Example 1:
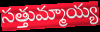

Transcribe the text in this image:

సత్తుమ్మాయ్య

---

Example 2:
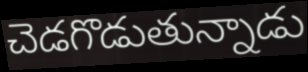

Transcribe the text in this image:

చెడగొడుతున్నాడు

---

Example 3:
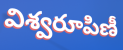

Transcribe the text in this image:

విశ్వరూపిణీ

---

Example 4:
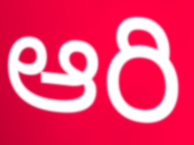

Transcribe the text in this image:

ఆరి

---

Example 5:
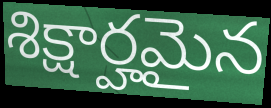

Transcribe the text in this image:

శిక్షార్హమైన